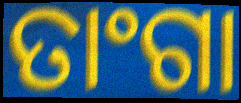
ତାଂଗା